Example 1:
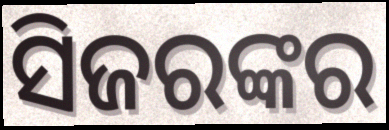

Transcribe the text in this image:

ସିଜରଙ୍କର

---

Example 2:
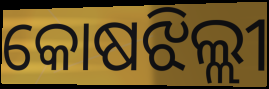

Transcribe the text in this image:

କୋଷଝିଲ୍ଲୀ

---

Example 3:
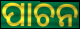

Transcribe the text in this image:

ପାଚନ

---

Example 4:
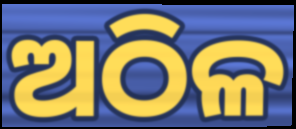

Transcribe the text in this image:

ଅଠିଳ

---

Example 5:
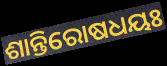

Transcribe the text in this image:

ଶାନ୍ତିରୋଷଧୟଃ